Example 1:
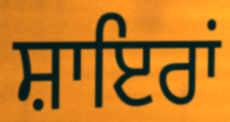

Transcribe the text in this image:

ਸ਼ਾਇਰਾਂ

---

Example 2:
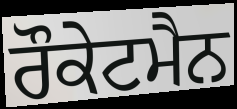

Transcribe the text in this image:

ਰੌਕੇਟਮੈਨ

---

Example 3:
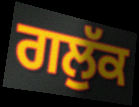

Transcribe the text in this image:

ਗਲੁੱਕ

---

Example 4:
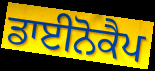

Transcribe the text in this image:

ਡਾਈਨੋਕੈਪ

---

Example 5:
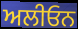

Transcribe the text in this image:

ਅਲੀਓਨ